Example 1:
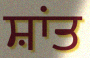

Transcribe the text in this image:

ਸ਼ਾਂਤ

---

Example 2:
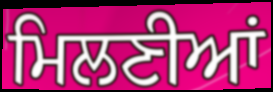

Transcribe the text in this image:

ਮਿਲਣੀਆਂ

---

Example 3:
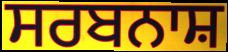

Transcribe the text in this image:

ਸਰਬਨਾਸ਼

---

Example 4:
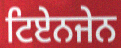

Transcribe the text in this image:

ਟਿਏਨਜੇਨ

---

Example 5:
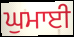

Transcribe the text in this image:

ਘੁਮਾਈ